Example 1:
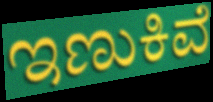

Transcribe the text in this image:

ಇಣುಕಿವೆ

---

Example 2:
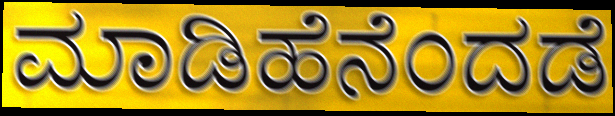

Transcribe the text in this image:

ಮಾಡಿಹೆನೆಂದಡೆ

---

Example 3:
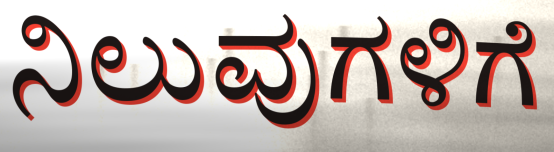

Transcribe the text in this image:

ನಿಲುವುಗಳಿಗೆ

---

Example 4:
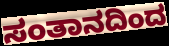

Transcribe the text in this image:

ಸಂತಾನದಿಂದ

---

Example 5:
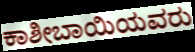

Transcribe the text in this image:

ಕಾಶೀಬಾಯಿಯವರು